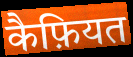
कैफ़ियत